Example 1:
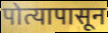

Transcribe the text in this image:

पोत्यापासून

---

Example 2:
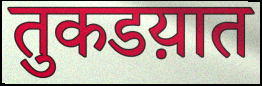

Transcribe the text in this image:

तुकडय़ात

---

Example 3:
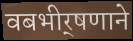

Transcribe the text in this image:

वबभीर्षणाने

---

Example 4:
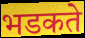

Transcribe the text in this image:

भडकते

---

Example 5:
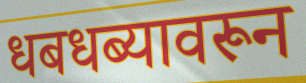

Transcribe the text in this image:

धबधब्यावरून